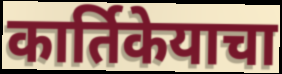
कार्तिकेयाचा